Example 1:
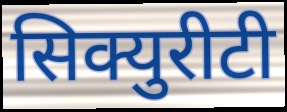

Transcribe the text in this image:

सिक्युरीटी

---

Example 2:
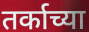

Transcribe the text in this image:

तर्काच्या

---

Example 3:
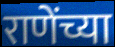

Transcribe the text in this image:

राणेंच्या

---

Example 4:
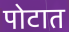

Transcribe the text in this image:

पोटात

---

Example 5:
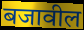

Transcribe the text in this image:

बजावील